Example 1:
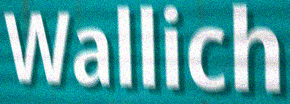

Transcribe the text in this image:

Wallich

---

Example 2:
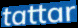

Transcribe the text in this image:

tattar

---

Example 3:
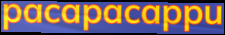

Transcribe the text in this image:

pacapacappu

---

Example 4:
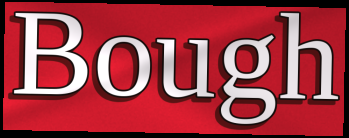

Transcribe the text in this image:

Bough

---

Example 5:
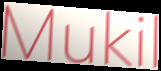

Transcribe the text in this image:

Mukil